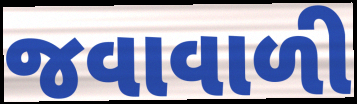
જવાવાળી